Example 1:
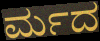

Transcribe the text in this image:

ರ್ಮದ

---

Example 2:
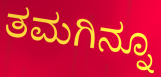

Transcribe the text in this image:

ತಮಗಿನ್ನೂ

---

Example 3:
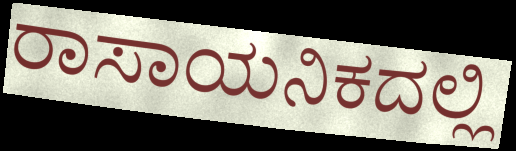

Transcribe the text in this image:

ರಾಸಾಯನಿಕದಲ್ಲಿ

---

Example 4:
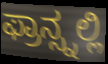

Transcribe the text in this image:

ಫ್ರಾನ್ಸ್ನಲ್ಲಿ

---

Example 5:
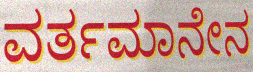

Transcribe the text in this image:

ವರ್ತಮಾನೇನ